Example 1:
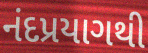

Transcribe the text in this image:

નંદપ્રયાગથી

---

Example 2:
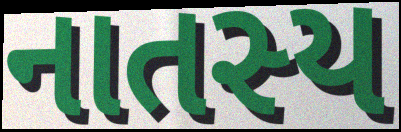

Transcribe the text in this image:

નાતસ્ય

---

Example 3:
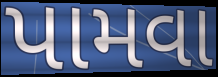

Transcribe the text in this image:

પામવા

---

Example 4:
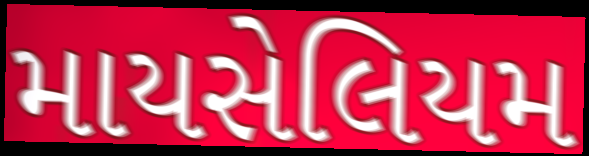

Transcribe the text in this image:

માયસેલિયમ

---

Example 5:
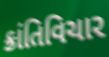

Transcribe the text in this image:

ક્રાંતિવિચાર